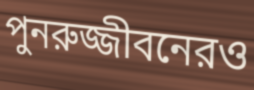
পুনরুজ্জীবনেরও